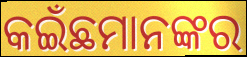
କଇଁଛମାନଙ୍କର